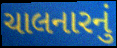
ચાલનારનું